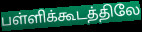
பள்ளிக்கூடத்திலே